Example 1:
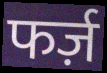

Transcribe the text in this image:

फर्ज़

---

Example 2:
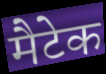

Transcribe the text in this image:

मैटेक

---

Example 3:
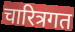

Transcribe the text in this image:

चारित्रगत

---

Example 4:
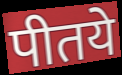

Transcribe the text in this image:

पीतये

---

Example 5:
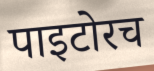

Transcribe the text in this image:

पाइटोरच